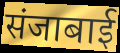
संजाबाई